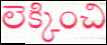
లెక్కించి